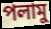
পলামু